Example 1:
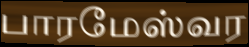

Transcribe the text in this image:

பாரமேஸ்வர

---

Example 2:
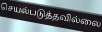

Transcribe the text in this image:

செயல்படுத்தவில்லை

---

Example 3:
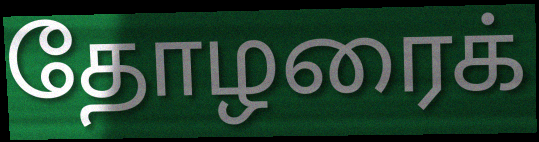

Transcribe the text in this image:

தோழரைக்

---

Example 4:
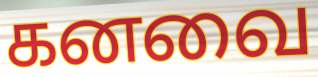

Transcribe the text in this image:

கனவை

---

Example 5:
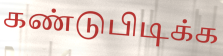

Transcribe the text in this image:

கண்டுபிடிக்க